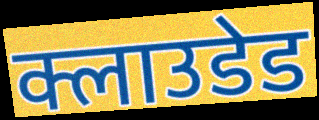
क्लाउडेड